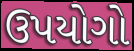
ઉપયોગો